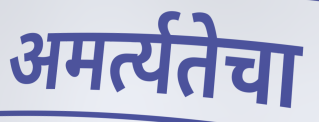
अमर्त्यतेचा